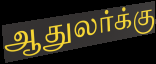
ஆதுலர்க்கு